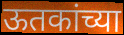
ऊतकांच्या